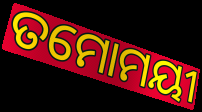
ତମୋମୟୀ